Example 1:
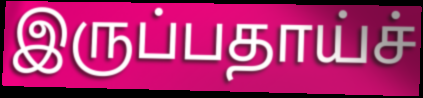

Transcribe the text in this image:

இருப்பதாய்ச்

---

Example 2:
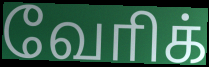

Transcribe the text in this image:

வேரிக்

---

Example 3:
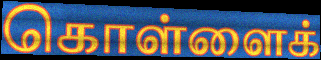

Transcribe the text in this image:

கொள்ளைக்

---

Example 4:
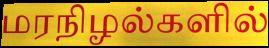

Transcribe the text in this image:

மரநிழல்களில்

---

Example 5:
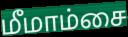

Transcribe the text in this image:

மீமாம்சை